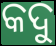
କଦୁ